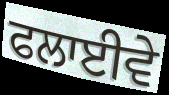
ਫਲਾਈਵੇ